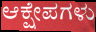
ಆಕ್ಷೇಪಗಳು